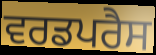
ਵਰਡਪਰੈਸ